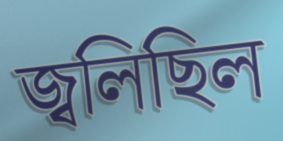
জ্বলিছিল